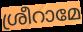
ശ്രീറാമേ